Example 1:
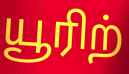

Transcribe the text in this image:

யூரிற்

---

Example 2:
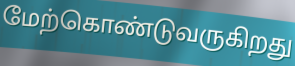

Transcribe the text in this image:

மேற்கொண்டுவருகிறது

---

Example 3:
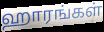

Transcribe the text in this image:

ஹாரங்கள்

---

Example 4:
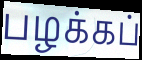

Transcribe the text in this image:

பழக்கப்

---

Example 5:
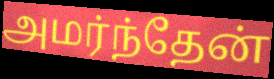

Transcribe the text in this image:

அமர்ந்தேன்